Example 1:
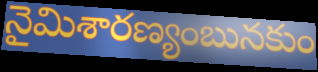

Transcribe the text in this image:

నైమిశారణ్యంబునకుం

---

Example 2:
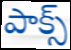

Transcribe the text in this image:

పాక్స్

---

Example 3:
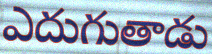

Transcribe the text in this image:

ఎదుగుతాడు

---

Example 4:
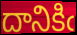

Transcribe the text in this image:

దానికిఁ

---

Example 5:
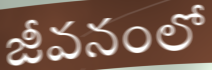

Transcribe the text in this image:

జీవనంలో